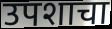
उपशाचा